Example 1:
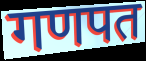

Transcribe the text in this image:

गणपत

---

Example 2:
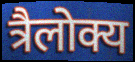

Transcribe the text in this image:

त्रैलोक्य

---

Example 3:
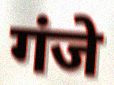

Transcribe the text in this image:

गंजे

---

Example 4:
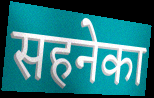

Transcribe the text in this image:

सहनेका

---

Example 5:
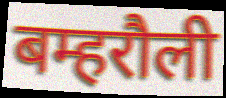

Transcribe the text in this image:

बम्हरौली